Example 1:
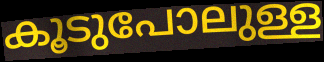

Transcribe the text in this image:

കൂടുപോലുള്ള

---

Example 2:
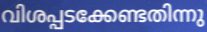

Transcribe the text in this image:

വിശപ്പടക്കേണ്ടതിന്നു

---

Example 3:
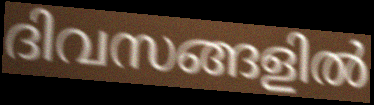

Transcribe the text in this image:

ദിവസങ്ങളിൽ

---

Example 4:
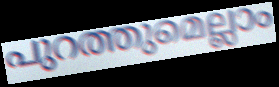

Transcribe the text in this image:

പുറത്തുമെല്ലാം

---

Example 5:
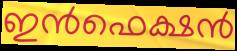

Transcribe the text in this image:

ഇൻഫെക്ഷൻ